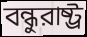
বন্ধুরাষ্ট্র